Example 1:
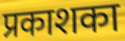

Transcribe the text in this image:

प्रकाशका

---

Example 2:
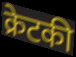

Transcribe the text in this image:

क्रेटकी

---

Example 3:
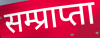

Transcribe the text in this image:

सम्प्राप्ता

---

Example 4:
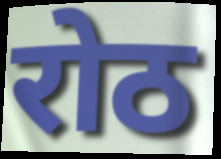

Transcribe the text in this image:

रोठ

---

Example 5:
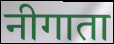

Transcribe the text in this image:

नीगाता